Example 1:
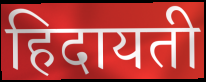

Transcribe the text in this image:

हिदायती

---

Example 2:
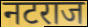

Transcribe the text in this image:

नटराज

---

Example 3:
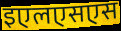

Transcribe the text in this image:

इएलएसएस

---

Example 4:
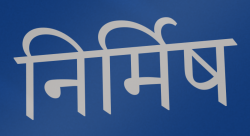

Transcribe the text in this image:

निर्मिष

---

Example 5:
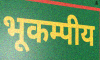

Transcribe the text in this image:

भूकम्पीय